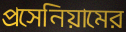
প্রসেনিয়ামের